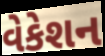
વેકેશન